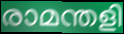
രാമന്തളി